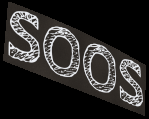
SOOS